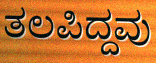
ತಲಪಿದ್ದವು